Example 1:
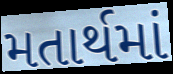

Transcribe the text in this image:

મતાર્થમાં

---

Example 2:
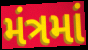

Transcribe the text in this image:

મંત્રમાં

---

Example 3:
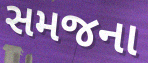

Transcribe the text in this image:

સમજના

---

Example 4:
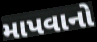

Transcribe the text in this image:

માપવાનો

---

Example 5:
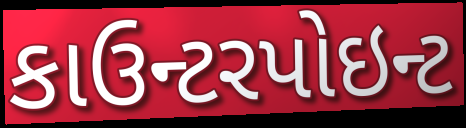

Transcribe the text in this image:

કાઉન્ટરપોઇન્ટ